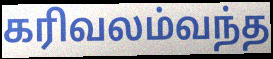
கரிவலம்வந்த